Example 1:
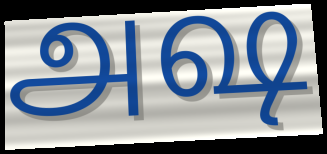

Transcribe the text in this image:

அஷ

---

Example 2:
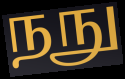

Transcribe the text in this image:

நநு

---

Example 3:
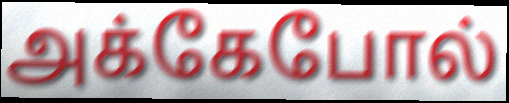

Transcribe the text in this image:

அக்கேபோல்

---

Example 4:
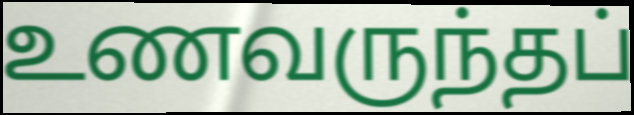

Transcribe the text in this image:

உணவருந்தப்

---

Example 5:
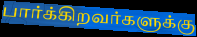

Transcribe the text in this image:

பார்க்கிறவர்களுக்கு